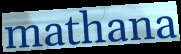
mathana